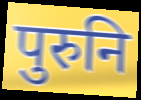
पुरुनि